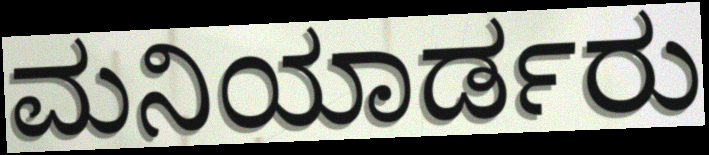
ಮನಿಯಾರ್ಡರು